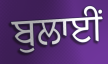
ਬੁਲਾਈਂ